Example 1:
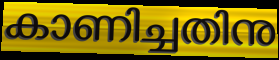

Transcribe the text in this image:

കാണിച്ചതിനു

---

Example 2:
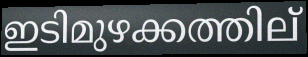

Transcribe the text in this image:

ഇടിമുഴക്കത്തില്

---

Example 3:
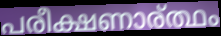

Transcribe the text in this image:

പരീക്ഷണാര്ത്ഥം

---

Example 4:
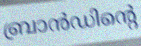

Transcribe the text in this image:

ബ്രാൻഡിന്റെ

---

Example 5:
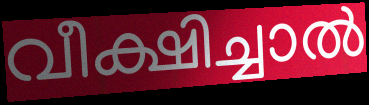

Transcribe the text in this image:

വീക്ഷിച്ചാൽ